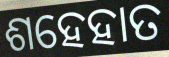
ଶହେହାତ